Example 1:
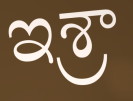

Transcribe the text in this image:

ఇశ్రా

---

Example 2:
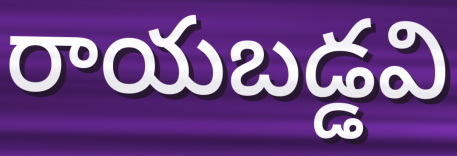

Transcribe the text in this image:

రాయబడ్డవి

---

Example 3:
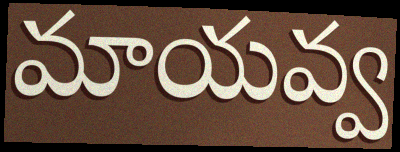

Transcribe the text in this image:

మాయవ్వ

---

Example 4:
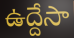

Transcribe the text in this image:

ఉద్దేసా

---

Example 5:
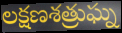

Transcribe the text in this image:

లక్షణశత్రుఘ్న